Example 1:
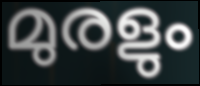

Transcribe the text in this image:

മുരളും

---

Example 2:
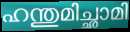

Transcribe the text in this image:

ഹന്തുമിച്ഛാമി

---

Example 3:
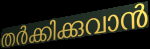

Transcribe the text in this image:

തർക്കിക്കുവാൻ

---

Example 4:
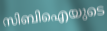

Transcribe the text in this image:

സിബിഐയുടെ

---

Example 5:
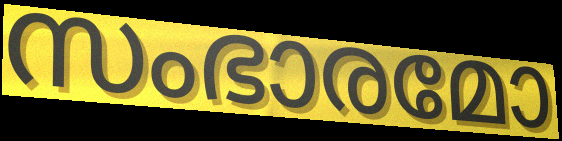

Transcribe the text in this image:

സംഭാരമോ